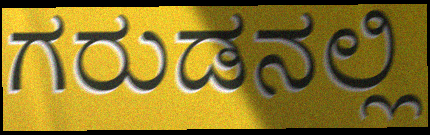
ಗರುಡನಲ್ಲಿ